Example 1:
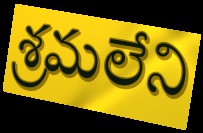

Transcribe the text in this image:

శ్రమలేని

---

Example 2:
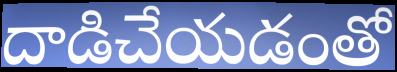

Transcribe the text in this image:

దాడిచేయడంతో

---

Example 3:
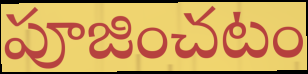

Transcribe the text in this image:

పూజించటం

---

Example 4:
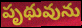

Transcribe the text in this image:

పృథువును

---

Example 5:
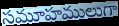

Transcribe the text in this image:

సమూహములుగా